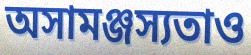
অসামঞ্জস্যতাও